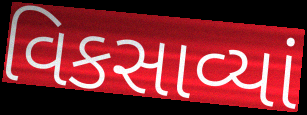
વિકસાવ્યાં